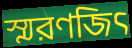
স্মরণজিৎ